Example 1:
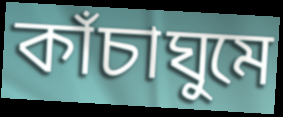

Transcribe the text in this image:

কাঁচাঘুমে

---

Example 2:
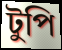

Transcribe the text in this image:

টুপি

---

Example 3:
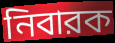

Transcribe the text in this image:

নিবারক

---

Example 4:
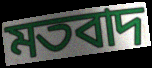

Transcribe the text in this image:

মতবাদ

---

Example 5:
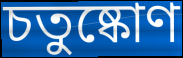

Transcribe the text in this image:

চতুষ্কোণ